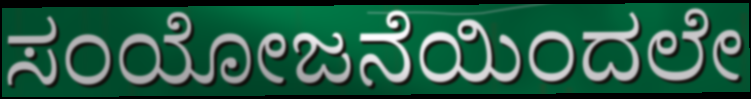
ಸಂಯೋಜನೆಯಿಂದಲೇ